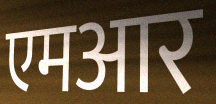
एमआर